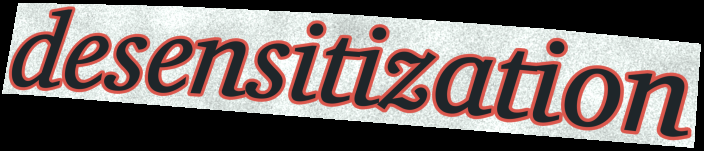
desensitization